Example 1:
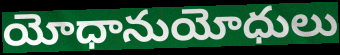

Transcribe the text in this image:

యోధానుయోధులు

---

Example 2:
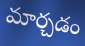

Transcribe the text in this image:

మార్చడం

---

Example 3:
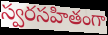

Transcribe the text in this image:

స్వరసహితంగా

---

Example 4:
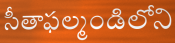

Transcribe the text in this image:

సీతాఫల్మండిలోని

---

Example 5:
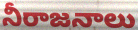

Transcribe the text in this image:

నీరాజనాలు